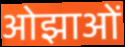
ओझाओं